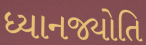
ધ્યાનજ્યોતિ